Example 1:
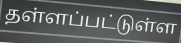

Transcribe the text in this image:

தள்ளப்பட்டுள்ள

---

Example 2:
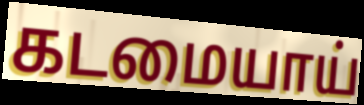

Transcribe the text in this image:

கடமையாய்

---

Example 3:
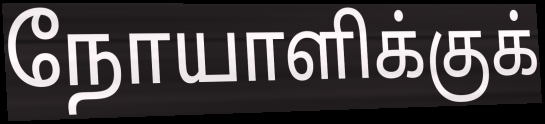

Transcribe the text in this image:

நோயாளிக்குக்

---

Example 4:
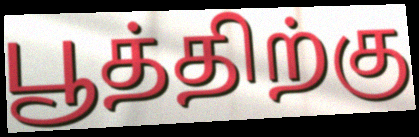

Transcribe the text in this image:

பூத்திற்கு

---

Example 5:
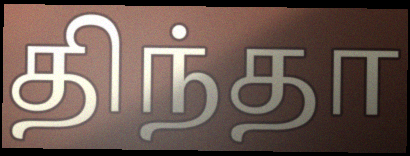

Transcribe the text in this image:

திந்தா